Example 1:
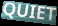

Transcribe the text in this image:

QUIET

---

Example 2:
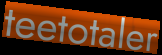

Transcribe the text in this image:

teetotaler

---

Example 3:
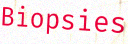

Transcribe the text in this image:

Biopsies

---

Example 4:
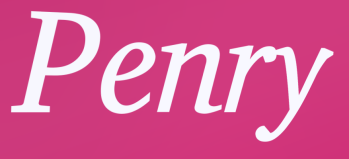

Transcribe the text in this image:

Penry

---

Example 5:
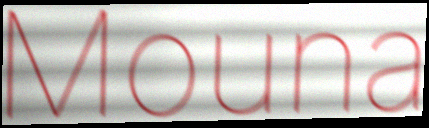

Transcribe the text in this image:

Mouna